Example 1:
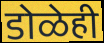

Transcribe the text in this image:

डोळेही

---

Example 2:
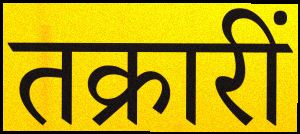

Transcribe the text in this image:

तक्रारीं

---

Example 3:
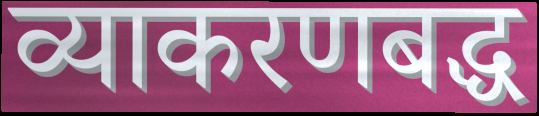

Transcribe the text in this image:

व्याकरणबद्ध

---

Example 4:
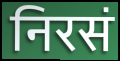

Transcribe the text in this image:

निरसं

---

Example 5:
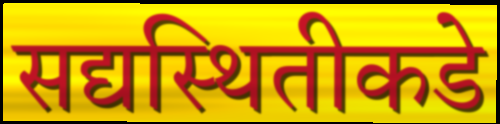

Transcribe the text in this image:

सद्यस्थितीकडे